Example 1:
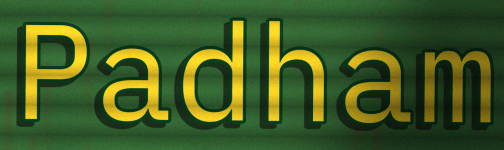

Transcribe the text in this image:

Padham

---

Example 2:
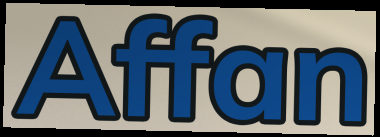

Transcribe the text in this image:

Affan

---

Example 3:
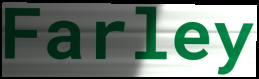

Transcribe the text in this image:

Farley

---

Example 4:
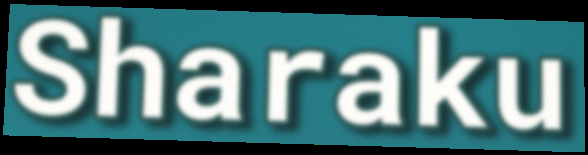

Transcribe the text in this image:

Sharaku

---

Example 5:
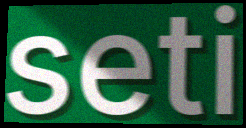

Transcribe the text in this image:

seti